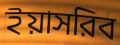
ইয়াসরিব